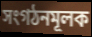
সংগঠনমূলক